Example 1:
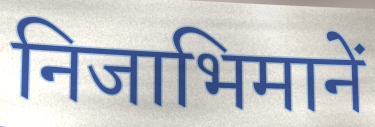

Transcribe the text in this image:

निजाभिमानें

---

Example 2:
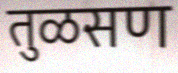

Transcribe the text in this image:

तुळसण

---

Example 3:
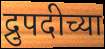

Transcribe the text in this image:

द्रुपदीच्या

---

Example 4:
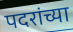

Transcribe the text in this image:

पदरांच्या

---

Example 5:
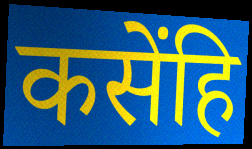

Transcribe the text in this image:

कसेंहि